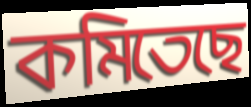
কমিতেছে